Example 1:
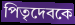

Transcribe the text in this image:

পিতৃদেবকে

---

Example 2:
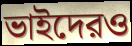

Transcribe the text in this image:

ভাইদেরও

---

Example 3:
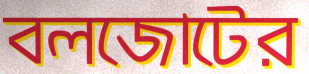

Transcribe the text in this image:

বলজোটের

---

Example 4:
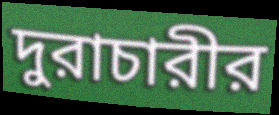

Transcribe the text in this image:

দুরাচারীর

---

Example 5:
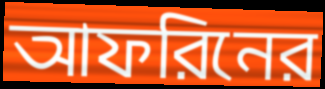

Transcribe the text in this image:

আফরিনের